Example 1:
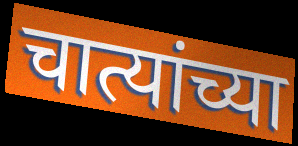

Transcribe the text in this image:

चात्यांच्या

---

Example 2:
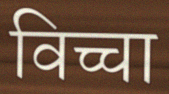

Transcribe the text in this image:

विच्चा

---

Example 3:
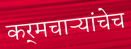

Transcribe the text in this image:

कर्मचाऱ्यांचेच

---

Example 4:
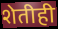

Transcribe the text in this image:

शेतीही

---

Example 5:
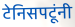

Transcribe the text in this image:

टेनिसपटूंनी